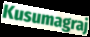
Kusumagraj